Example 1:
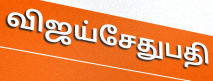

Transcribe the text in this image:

விஜய்சேதுபதி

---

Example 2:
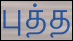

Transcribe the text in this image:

புத்த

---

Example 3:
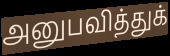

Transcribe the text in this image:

அனுபவித்துக்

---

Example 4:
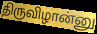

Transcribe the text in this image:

திருவிழான்னு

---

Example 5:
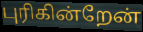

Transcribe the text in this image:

புரிகின்றேன்